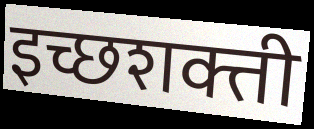
इच्छशक्ती